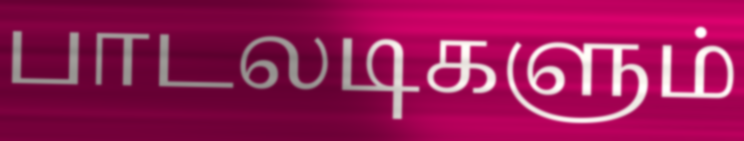
பாடலடிகளும்